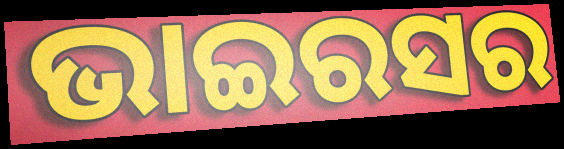
ଭାଇରସର